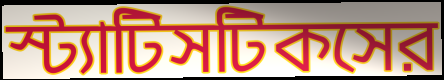
স্ট্যাটিসটিকসের